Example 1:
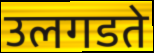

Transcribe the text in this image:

उलगडते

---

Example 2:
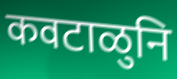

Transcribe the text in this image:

कवटाळुनि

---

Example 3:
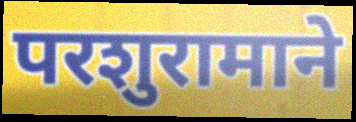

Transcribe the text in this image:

परशुरामाने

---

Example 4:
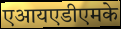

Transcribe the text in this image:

एआयएडीएमके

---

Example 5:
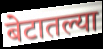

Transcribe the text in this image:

बेटातल्या